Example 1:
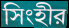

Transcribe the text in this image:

সিংহীর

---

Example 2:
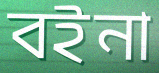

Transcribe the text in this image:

বইনা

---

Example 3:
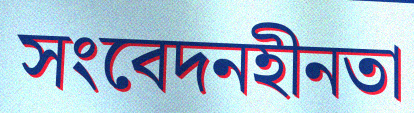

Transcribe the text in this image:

সংবেদনহীনতা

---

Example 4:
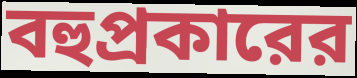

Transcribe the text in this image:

বহুপ্রকারের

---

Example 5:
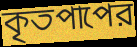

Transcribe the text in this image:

কৃতপাপের